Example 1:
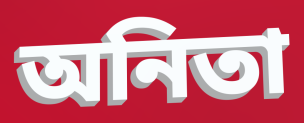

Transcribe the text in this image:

অনিতা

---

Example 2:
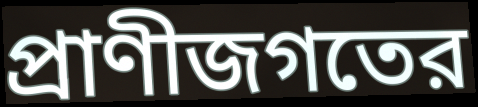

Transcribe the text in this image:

প্রাণীজগতের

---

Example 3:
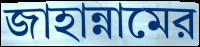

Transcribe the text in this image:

জাহান্নামের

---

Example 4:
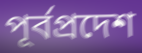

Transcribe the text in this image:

পূর্বপ্রদেশ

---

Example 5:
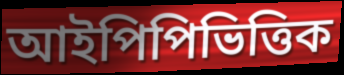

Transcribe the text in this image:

আইপিপিভিত্তিক